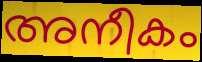
അനീകം